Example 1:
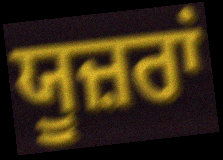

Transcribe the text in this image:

ਯੂਜ਼ਰਾਂ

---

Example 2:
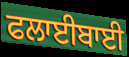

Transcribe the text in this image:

ਫਲਾਈਬਾਈ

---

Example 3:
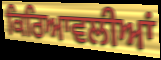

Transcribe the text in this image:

ਕਿਰਿਆਵਲੀਆਂ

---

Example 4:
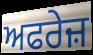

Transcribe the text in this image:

ਅਫਰੇਜ਼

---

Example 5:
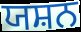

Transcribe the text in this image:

ਯਸ਼ਨ